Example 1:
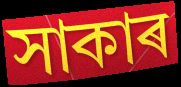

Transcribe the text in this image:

সাকাৰ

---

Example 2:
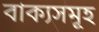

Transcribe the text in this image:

বাক্যসমূহ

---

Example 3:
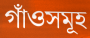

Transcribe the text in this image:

গাঁওসমূহ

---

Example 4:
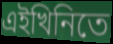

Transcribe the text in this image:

এইখিনিতে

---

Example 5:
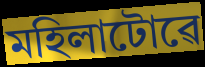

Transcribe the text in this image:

মহিলাটোৱে